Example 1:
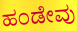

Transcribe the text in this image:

ಹಂಡೇವು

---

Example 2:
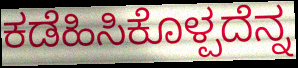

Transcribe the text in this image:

ಕಡೆಹಿಸಿಕೊಳ್ಪದೆನ್ನ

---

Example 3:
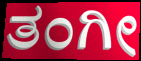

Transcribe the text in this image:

ತಂಗೀ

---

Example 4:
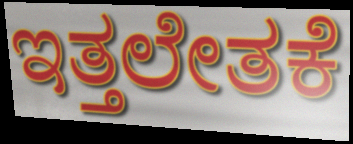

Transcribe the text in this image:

ಇತ್ತಲೇತಕೆ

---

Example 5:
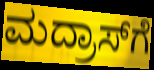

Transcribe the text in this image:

ಮದ್ರಾಸ್‍ಗೆ